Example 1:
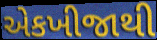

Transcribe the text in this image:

એકખીજાથી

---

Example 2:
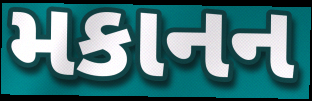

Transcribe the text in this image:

મકાનન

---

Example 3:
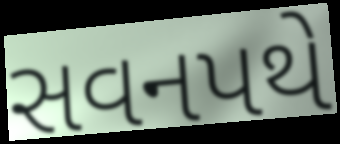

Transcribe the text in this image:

સવનપથે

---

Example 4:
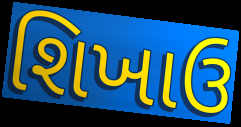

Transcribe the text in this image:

શિખાઉ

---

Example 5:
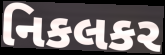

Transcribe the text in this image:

નિકલકર